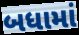
બધામાં